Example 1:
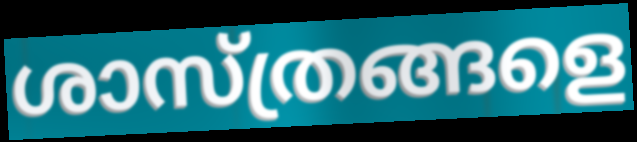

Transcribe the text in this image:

ശാസ്ത്രങ്ങളെ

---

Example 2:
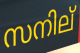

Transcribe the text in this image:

സനില്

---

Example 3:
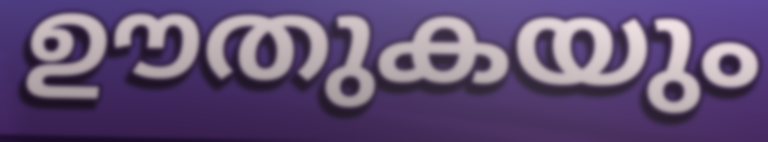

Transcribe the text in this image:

ഊതുകയും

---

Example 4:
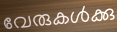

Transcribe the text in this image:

വേരുകൾക്കു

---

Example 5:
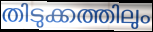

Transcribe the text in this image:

തിടുക്കത്തിലും